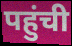
पहुंची